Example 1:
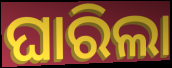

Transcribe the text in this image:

ଘାରିଲା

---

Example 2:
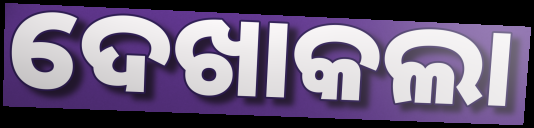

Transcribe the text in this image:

ଦେଖାକଲା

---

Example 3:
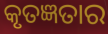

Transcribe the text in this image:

କୃତଜ୍ଞତାର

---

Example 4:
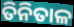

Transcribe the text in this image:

ତିନିତାଳ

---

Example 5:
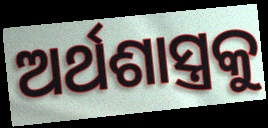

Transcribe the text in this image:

ଅର୍ଥଶାସ୍ତ୍ରକୁ